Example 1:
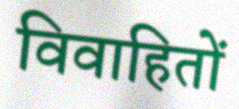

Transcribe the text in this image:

विवाहितों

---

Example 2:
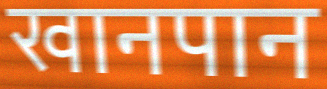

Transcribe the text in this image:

खानपान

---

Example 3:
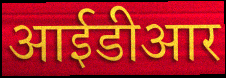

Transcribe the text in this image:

आईडीआर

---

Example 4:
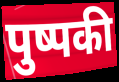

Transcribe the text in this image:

पुष्पकी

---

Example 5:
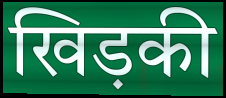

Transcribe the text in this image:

खिड़की